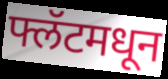
फ्लॅटमधून